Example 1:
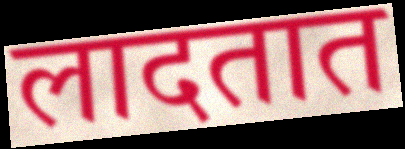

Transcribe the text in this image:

लादतात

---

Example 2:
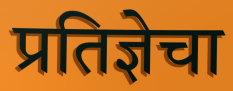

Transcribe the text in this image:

प्रतिज्ञेचा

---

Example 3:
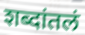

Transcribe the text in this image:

शब्दांतलं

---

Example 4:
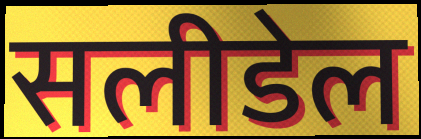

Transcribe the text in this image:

सलीडेल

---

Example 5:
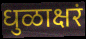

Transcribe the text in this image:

धुळाक्षरं